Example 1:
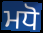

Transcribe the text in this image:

ਮਧੋ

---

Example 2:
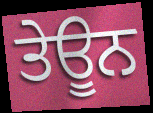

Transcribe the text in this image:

ਤੇਊਨ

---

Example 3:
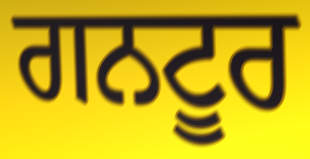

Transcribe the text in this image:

ਗਨਟੂਰ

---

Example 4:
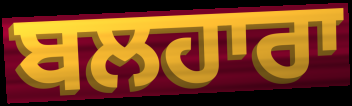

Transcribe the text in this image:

ਬਲਹਾਰਾ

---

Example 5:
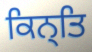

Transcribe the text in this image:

ਕਿਨ੍ਤਿ